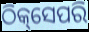
ଠିକ୍‌ସେପରି